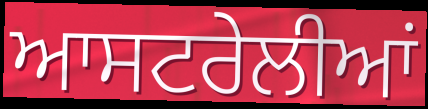
ਆਸਟਰੇਲੀਆਂ